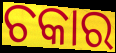
ଚକାର